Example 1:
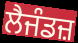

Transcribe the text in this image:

ਲੈਜੰਡਜ਼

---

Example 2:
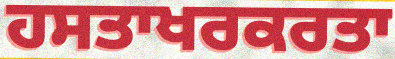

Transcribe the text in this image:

ਹਸਤਾਖਰਕਰਤਾ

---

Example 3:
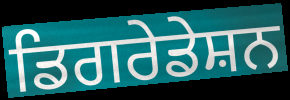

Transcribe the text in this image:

ਡਿਗਰੇਡੇਸ਼ਨ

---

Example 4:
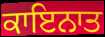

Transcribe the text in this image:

ਕਾਇਨਾਤ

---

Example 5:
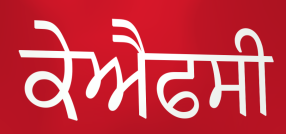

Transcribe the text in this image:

ਕੇਐਫਸੀ